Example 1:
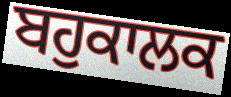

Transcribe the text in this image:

ਬਹੁਕਾਲਕ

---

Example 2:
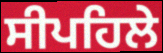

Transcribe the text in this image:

ਸੀਪਹਿਲੇ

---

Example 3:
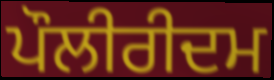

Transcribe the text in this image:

ਪੌਲੀਰੀਦਮ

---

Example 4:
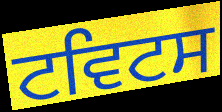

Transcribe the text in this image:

ਟਵਿਟਸ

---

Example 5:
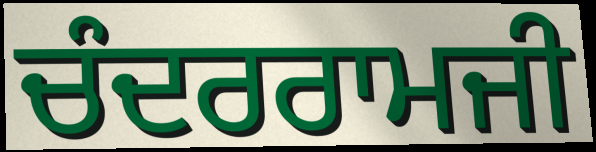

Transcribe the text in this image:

ਚੰਦਰਰਾਮਜੀ